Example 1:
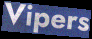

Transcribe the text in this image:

Vipers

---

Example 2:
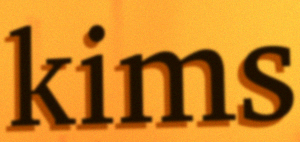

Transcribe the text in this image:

kims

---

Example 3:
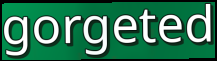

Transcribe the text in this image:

gorgeted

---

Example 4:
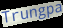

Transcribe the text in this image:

Trungpa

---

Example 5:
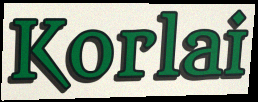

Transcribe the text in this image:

Korlai